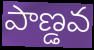
పాణ్డవ